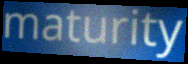
maturity